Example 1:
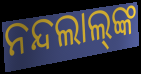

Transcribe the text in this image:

ନନ୍ଦଲାଲ୍‌ଙ୍କ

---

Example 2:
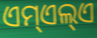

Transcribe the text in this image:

ଏମ୍ଏଲ୍ଏ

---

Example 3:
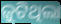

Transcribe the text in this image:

ଜୁଟିଥିଲା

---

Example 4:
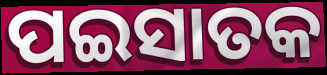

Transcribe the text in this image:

ପଇସାତକ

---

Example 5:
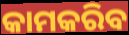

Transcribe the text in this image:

କାମକରିବ